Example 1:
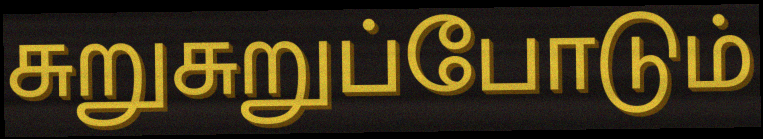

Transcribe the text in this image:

சுறுசுறுப்போடும்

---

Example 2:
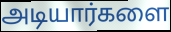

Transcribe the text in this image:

அடியார்களை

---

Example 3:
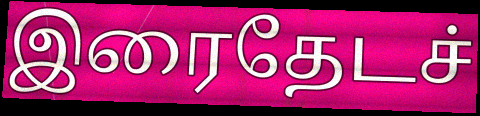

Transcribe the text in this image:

இரைதேடச்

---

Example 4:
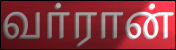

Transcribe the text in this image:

வர்ரான்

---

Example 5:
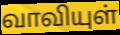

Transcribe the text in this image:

வாவியுள்